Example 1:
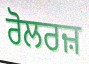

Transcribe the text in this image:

ਰੋਲਰਜ਼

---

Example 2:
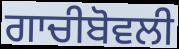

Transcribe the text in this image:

ਗਾਚੀਬੋਵਲੀ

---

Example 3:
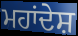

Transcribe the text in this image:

ਮਹਾਂਦੇਸ਼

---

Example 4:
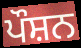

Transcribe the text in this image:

ਪੌਸ਼ਨ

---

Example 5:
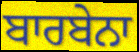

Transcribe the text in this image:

ਬਾਰਬੇਨਾ